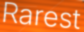
Rarest